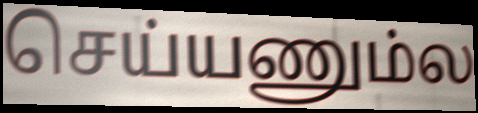
செய்யணும்ல